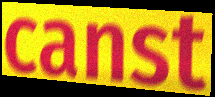
canst